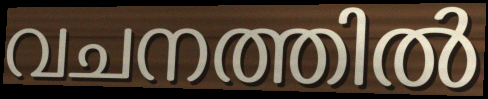
വചനത്തിൽ